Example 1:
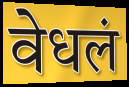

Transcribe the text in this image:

वेधलं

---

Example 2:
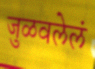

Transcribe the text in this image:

जुळवलेलं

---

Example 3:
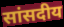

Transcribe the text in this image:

सांसदीय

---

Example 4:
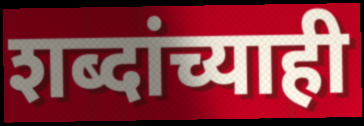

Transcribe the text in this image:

शब्दांच्याही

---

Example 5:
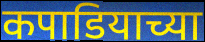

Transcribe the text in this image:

कपाडियाच्या